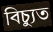
বিচ্যুত